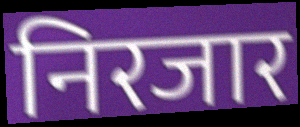
निरजार